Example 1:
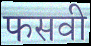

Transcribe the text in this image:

फसवी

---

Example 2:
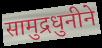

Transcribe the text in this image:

सामुद्रधुनीने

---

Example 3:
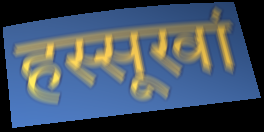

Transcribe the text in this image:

हस्सूखां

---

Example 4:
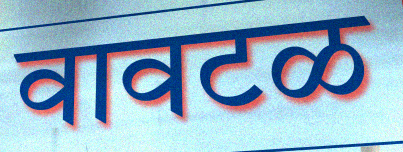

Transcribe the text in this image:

वावटळ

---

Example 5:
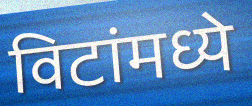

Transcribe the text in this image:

विटांमध्ये